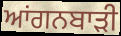
ਆਂਗਨਬਾੜੀ